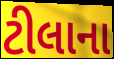
ટીલાના